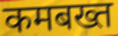
कमबख्त